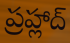
ప్రహ్లాద్